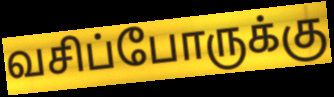
வசிப்போருக்கு